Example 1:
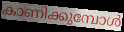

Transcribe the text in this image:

കാണിക്കുമ്പോൾ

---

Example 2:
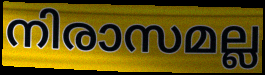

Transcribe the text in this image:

നിരാസമല്ല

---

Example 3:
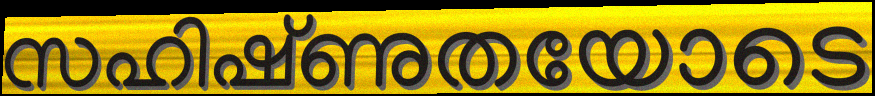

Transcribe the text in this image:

സഹിഷ്‌ണുതയോടെ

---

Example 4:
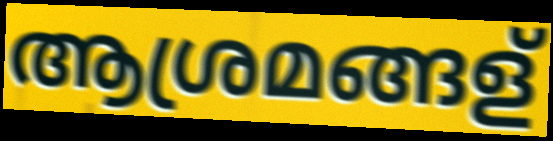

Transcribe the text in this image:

ആശ്രമങ്ങള്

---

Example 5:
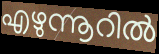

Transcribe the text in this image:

എഴുന്നൂറിൽ